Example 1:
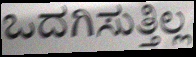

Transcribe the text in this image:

ಒದಗಿಸುತ್ತಿಲ್ಲ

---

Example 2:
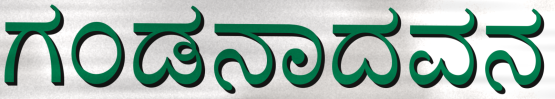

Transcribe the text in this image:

ಗಂಡನಾದವನ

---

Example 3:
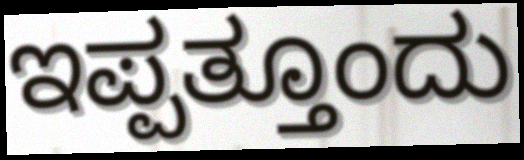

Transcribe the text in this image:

ಇಪ್ಪತ್ತೂಂದು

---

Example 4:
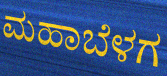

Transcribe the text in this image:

ಮಹಾಬೆಳಗ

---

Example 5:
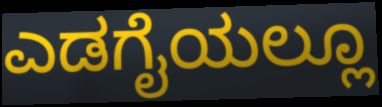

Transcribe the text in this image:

ಎಡಗೈಯಲ್ಲೂ